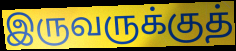
இருவருக்குத்